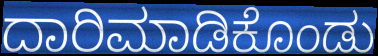
ದಾರಿಮಾಡಿಕೊಂಡು